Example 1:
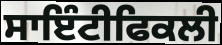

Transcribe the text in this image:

ਸਾਇੰਟੀਫਿਕਲੀ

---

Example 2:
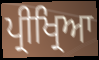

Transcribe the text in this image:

ਪ੍ਰੀਖ੍ਰਿਆ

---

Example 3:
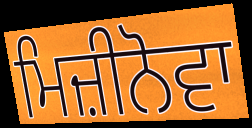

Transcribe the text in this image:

ਮਿਜ਼ੀਨੋਵਾ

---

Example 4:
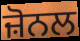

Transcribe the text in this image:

ਜ਼ੋਨਲ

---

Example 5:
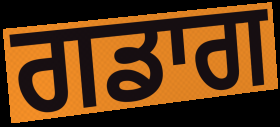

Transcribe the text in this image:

ਗਡਾਗ